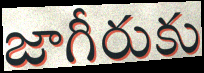
జాగీరుకు